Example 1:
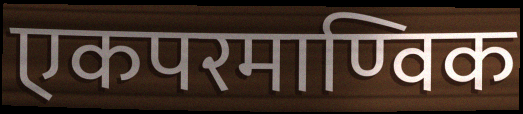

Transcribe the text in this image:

एकपरमाण्विक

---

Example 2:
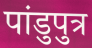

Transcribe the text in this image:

पांडुपुत्र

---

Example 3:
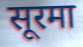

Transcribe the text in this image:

सूरमा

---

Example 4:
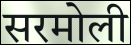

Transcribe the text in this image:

सरमोली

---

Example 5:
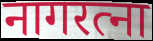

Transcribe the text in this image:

नागरत्ना